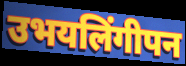
उभयलिंगीपन